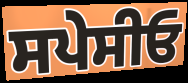
ਸਪੇਸੀਓ